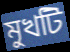
মুখটি